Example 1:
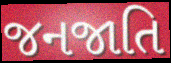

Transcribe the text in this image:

જનજાતિ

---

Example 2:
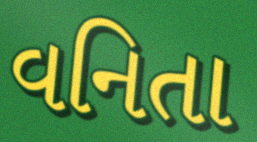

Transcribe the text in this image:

વનિતા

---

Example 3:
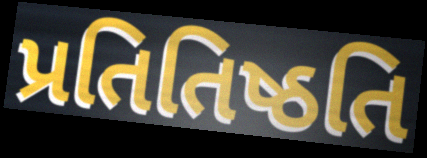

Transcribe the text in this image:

પ્રતિતિષ્ઠતિ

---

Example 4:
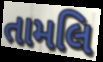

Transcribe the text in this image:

તામલિ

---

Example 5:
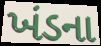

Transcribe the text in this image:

ખંડના